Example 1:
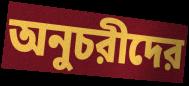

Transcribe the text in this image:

অনুচরীদের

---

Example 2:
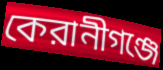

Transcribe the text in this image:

কেরানীগঞ্জে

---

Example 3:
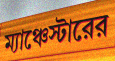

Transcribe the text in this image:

ম্যাঞ্চেস্টারের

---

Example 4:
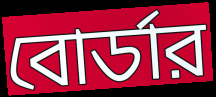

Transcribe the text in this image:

বোর্ডার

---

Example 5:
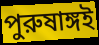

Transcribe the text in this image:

পুরুষাঙ্গই